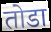
तोडा